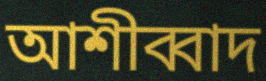
আশীব্বাদ